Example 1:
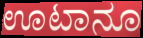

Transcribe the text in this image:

ಊಟಾನೂ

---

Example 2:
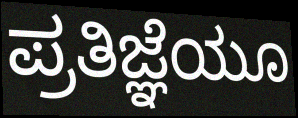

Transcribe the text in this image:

ಪ್ರತಿಜ್ಞೆಯೂ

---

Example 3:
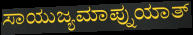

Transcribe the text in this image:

ಸಾಯುಜ್ಯಮಾಪ್ನುಯಾತ್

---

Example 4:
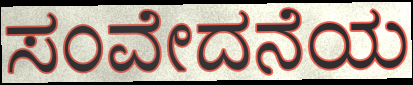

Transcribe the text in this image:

ಸಂವೇದನೆಯ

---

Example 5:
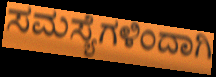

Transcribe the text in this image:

ಸಮಸ್ಯೆಗಳಿಂದಾಗಿ